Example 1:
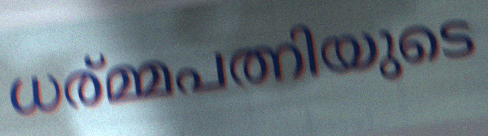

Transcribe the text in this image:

ധര്മ്മപത്നിയുടെ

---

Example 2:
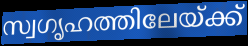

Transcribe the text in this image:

സ്വഗൃഹത്തിലേയ്ക്ക്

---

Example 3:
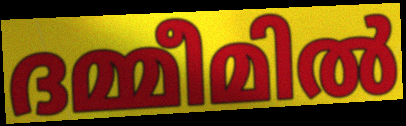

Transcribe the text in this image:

ദമ്മീമിൽ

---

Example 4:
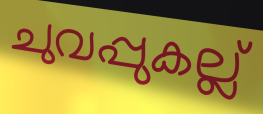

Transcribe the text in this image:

ചുവപ്പുകല്ല്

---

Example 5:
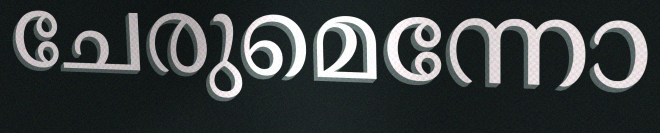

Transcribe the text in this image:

ചേരുമെന്നോ